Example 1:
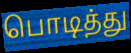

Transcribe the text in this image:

பொடித்து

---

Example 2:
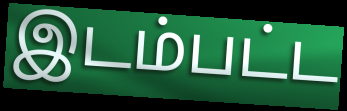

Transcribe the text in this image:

இடம்பட்ட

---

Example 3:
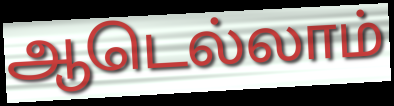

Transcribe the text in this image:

ஆடெல்லாம்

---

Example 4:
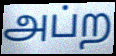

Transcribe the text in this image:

அப்ற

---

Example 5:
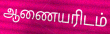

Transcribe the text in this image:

ஆணையரிடம்